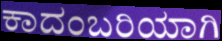
ಕಾದಂಬರಿಯಾಗಿ